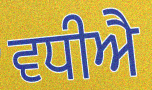
ਵਧੀਐ